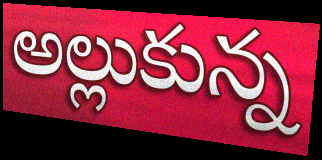
అల్లుకున్న